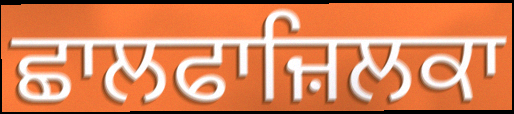
ਛਾਲਫਾਜ਼ਿਲਕਾ